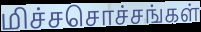
மிச்சசொச்சங்கள்